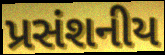
પ્રસંશનીય